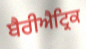
ਬੈਰੀਐਟ੍ਰਿਕ